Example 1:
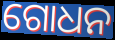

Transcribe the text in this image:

ଗୋଧନ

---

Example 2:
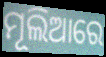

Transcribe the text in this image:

ମୂଲିଆରେ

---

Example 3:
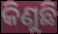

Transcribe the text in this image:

କିଣୁଛି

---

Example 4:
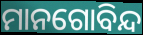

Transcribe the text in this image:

ମାନଗୋବିନ୍ଦ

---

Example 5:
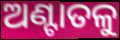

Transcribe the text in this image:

ଅଣ୍ଟାତଳୁ